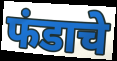
फंडाचे